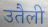
उतैली